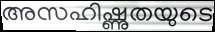
അസഹിഷ്ണുതയുടെ